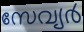
സേവ്യർ